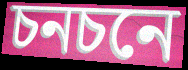
চনচনে